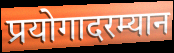
प्रयोगादरम्यान